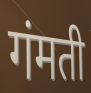
गंमती